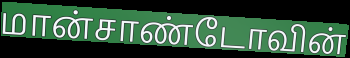
மான்சாண்டோவின்